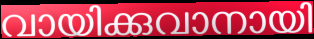
വായിക്കുവാനായി